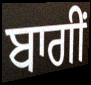
ਬਾਗੀਂ